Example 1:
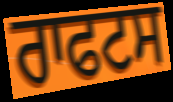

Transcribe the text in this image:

ਰਾਫਟਸ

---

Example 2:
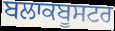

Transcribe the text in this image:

ਬਲਾਕਬੂਸਟਰ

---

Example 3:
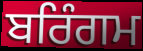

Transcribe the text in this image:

ਬਰਿੰਗਮ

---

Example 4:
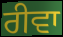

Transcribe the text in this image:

ਰੀਵਾ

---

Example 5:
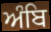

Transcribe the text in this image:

ਅੰਬਿ